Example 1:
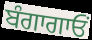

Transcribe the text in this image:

ਬੰਗਾਗਾਓਂ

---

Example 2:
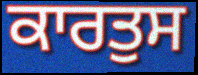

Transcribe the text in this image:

ਕਾਰਤੁਸ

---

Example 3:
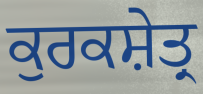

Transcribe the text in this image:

ਕੁਰਕਸ਼ੇਤ੍ਰ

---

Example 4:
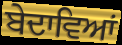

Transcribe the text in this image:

ਬੇਦਾਵਿਆਂ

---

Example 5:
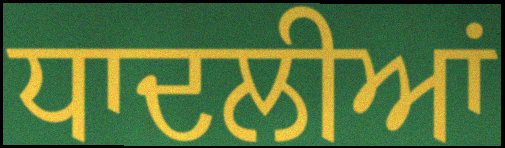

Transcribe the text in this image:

ਧਾਦਲੀਆਂ